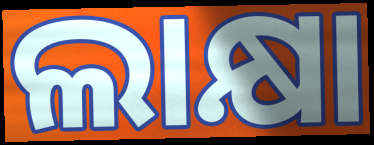
ଲାକ୍ଷା